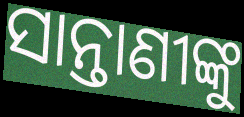
ସାନ୍ତାଣୀଙ୍କୁ